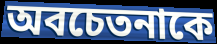
অবচেতনাকে